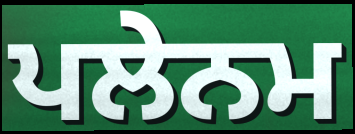
ਪਲੇਨਮ